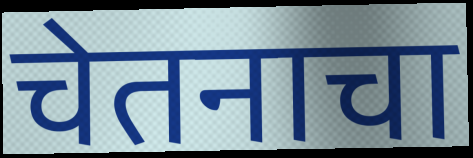
चेतनाचा